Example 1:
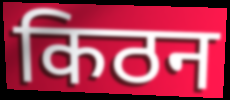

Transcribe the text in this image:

किठन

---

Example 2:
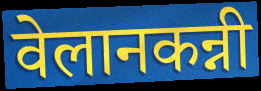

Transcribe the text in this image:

वेलानकन्नी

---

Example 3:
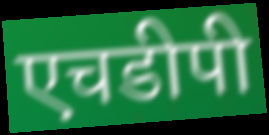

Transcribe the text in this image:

एचडीपी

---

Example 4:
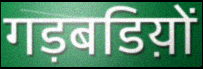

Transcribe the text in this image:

गड़बडिय़ों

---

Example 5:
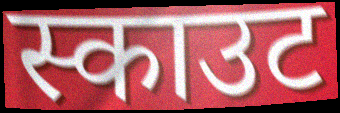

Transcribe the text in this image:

स्काउट